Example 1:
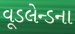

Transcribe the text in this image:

વૂડલેન્ડના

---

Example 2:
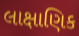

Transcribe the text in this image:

લાક્ષાણિક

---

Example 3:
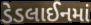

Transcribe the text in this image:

ડેડલાઈનમાં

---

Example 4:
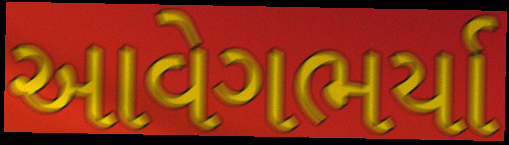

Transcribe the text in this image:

આવેગભર્યા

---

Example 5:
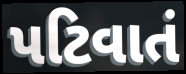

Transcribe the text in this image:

પટિવાતં